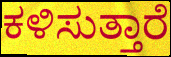
ಕಳಿಸುತ್ತಾರೆ